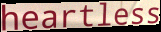
heartless